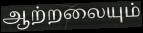
ஆற்றலையும்